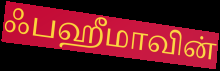
ஃபஹீமாவின்